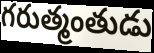
గరుత్మంతుడు